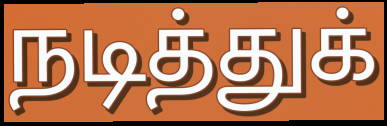
நடித்துக்